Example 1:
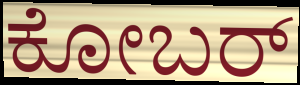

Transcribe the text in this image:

ಕೋಬರ್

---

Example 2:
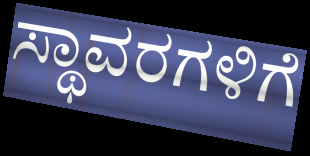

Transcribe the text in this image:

ಸ್ಥಾವರಗಳಿಗೆ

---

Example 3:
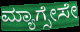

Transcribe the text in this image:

ಮ್ಯಾಗ್ಸೇಸೇ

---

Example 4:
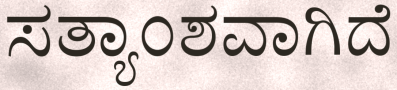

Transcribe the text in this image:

ಸತ್ಯಾಂಶವಾಗಿದೆ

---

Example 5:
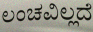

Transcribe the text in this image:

ಲಂಚವಿಲ್ಲದೆ